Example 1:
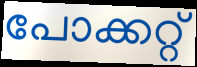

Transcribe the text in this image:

പോക്കറ്റ്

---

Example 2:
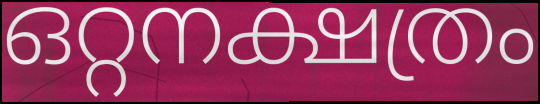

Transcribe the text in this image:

ഒറ്റനക്ഷത്രം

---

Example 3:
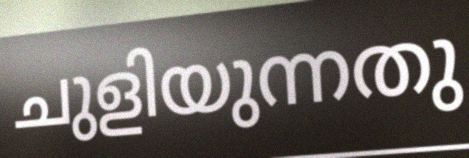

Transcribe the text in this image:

ചുളിയുന്നതു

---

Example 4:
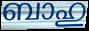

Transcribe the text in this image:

ബാഹു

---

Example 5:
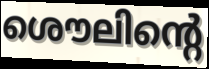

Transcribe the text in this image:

ശൌലിന്റെ